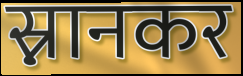
स्नानकर